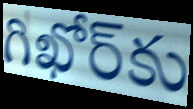
గిఖోర్‌కు